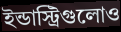
ইন্ডাস্ট্রিগুলোও